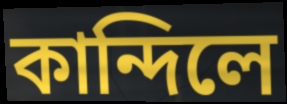
কান্দিলে